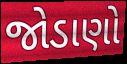
જોડાણો